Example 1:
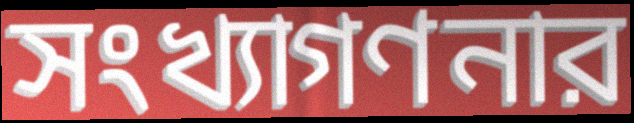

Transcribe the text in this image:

সংখ্যাগণনার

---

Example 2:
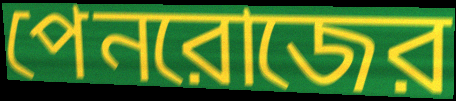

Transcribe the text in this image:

পেনরোজের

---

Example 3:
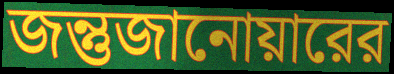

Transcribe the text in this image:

জন্তুজানোয়ারের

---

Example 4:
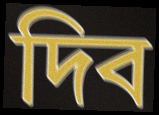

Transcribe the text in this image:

দিব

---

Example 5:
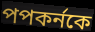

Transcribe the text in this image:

পপকর্নকে